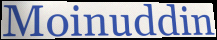
Moinuddin